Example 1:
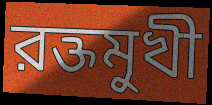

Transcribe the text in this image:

রক্তমুখী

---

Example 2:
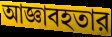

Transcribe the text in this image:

আজ্ঞাবহতার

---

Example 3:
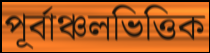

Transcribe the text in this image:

পূর্বাঞ্চলভিত্তিক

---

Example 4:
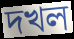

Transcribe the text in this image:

দখল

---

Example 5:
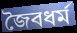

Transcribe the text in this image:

জৈবধর্ম